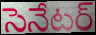
సెనేటర్